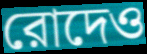
রোদেও